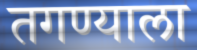
तगण्याला